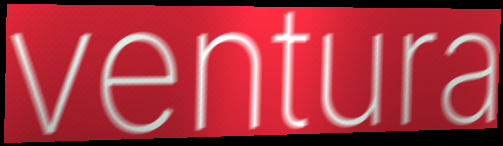
ventura